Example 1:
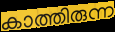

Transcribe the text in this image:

കാത്തിരുന്ന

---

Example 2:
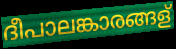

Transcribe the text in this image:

ദീപാലങ്കാരങ്ങള്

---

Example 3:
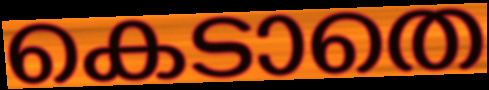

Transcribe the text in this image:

കെടാതെ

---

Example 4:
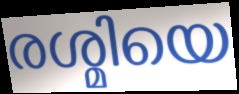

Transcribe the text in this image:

രശ്മിയെ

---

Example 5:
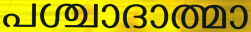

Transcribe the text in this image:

പശ്ചാദാത്മാ